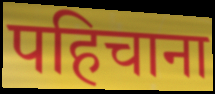
पहिचाना